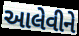
આલેવીને